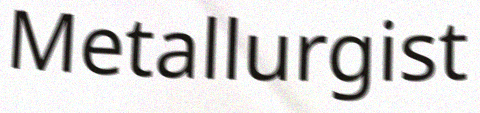
Metallurgist